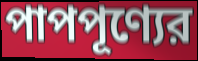
পাপপূণ্যের